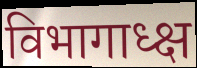
विभागाध्क्ष